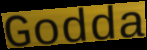
Godda